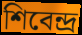
শিবেন্দ্র